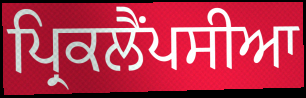
ਪ੍ਰਿਕਲੈਂਪਸੀਆ